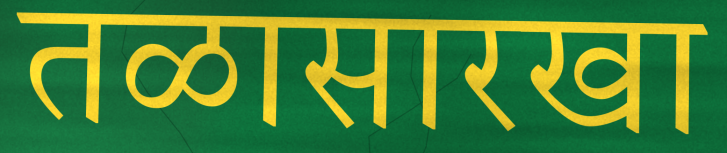
तळासारखा